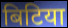
बिटिया